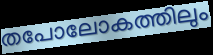
തപോലോകത്തിലും